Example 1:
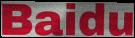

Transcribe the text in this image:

Baidu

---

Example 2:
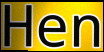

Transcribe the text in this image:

Hen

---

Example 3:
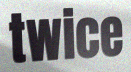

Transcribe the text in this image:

twice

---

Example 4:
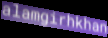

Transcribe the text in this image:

alamgirhkhan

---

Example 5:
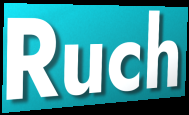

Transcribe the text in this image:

Ruch